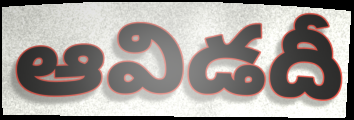
ఆవిడదీ